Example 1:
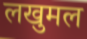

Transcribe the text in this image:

लखुमल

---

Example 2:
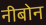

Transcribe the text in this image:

नीबोन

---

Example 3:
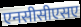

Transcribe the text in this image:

एनसीसीएसए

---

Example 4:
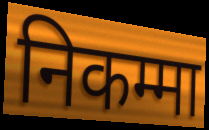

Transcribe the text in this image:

निकम्मा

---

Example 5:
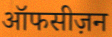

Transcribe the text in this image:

ऑफसीज़न